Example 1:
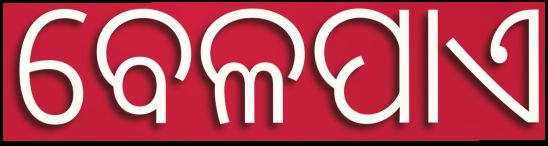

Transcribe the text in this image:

ବେଳପାଏ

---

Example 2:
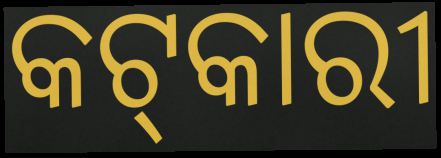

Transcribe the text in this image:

କଟ୍‌କାରୀ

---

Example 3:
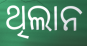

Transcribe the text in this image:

ଥିଲାନ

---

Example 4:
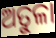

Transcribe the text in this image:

ଅତୁଳା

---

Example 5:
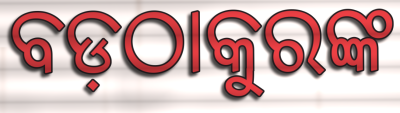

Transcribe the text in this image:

ବଡ଼ଠାକୁରଙ୍କ